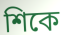
শিকে